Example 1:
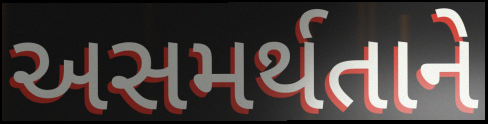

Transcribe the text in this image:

અસમર્થતાને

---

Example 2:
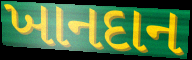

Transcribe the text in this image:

ખાનદાન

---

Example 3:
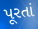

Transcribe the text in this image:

પૂરતાં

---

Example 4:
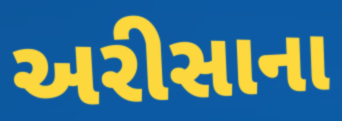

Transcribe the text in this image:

અરીસાના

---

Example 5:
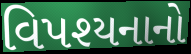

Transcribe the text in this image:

વિપશ્યનાનો